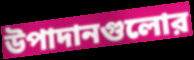
উপাদানগুলোর